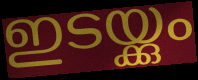
ഇടയ്ക്കും